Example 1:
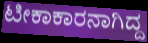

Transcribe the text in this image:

ಟೀಕಾಕಾರನಾಗಿದ್ದ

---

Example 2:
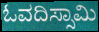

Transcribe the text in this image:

ಓವದಿಸ್ಸಾಮಿ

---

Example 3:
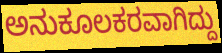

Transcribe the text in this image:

ಅನುಕೂಲಕರವಾಗಿದ್ದು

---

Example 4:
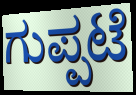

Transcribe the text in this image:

ಗುಪ್ಪಟೆ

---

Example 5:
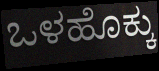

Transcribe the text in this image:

ಒಳಹೊಕ್ಕು